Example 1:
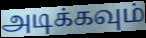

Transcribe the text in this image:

அடிக்கவும்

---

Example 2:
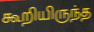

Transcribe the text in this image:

கூறியிருந்த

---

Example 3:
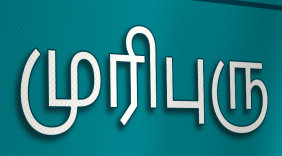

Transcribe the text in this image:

முரிபுரு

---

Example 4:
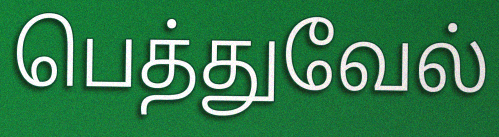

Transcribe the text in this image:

பெத்துவேல்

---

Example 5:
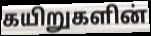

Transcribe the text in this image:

கயிறுகளின்